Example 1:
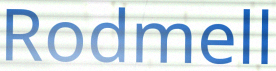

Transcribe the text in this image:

Rodmell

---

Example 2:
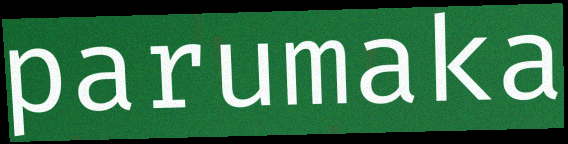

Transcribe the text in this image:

parumaka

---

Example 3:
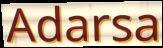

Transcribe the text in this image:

Adarsa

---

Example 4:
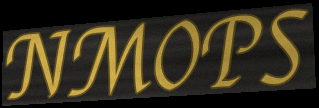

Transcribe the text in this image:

NMOPS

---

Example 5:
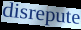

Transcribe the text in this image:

disrepute